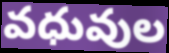
వధువుల